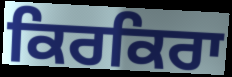
ਕਿਰਕਿਰਾ